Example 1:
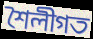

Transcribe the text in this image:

শৈলীগত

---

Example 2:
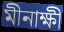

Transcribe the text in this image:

মীনাক্ষী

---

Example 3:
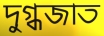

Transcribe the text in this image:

দুগ্ধজাত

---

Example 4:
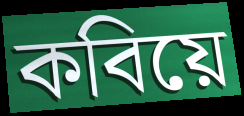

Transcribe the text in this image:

কবিয়ে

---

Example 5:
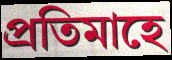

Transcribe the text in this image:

প্ৰতিমাহে